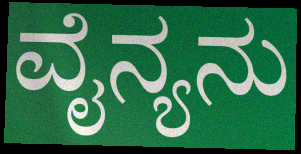
ವೈನ್ಯನು